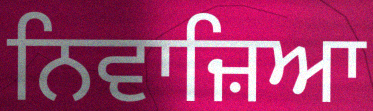
ਨਿਵਾਜ਼ਿਆ